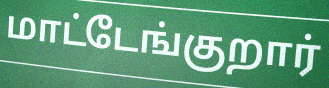
மாட்டேங்குறார்